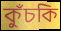
কুঁচকি